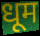
धूम